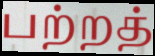
பற்றத்